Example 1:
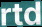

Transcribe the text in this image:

rtd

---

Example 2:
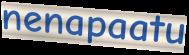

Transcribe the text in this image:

nenapaatu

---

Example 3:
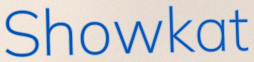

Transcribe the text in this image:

Showkat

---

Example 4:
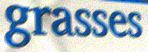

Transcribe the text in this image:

grasses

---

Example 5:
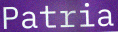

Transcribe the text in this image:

Patria